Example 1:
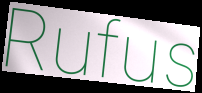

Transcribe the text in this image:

Rufus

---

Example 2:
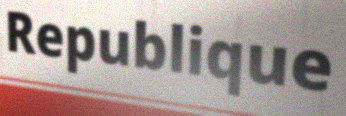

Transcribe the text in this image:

Republique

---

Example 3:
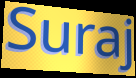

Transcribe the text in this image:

Suraj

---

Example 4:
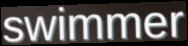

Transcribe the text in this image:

swimmer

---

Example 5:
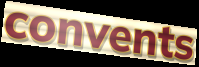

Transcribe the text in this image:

convents